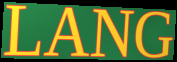
LANG